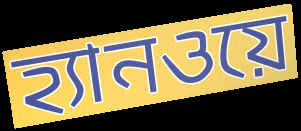
হ্যানওয়ে